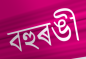
বহুৰঙী